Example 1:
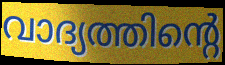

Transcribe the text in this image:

വാദ്യത്തിന്റെ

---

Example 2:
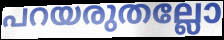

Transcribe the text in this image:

പറയരുതല്ലോ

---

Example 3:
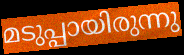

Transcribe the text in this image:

മടുപ്പായിരുന്നു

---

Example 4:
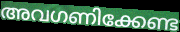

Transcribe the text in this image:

അവഗണിക്കേണ്ട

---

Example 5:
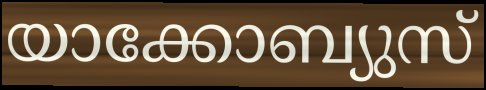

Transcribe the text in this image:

യാക്കോബ്യുസ്